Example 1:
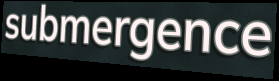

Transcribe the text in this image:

submergence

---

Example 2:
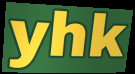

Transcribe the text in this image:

yhk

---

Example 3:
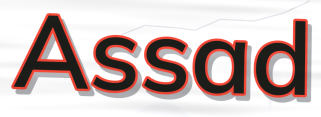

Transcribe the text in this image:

Assad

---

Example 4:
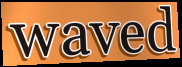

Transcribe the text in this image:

waved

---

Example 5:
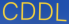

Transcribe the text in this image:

CDDL